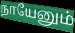
நாயேனும்